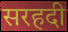
सरहदी